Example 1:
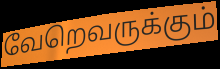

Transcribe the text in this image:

வேறெவருக்கும்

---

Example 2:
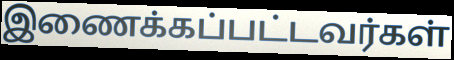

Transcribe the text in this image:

இணைக்கப்பட்டவர்கள்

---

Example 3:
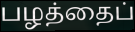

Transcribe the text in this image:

பழத்தைப்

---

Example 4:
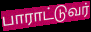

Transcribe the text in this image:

பாராட்டுவர்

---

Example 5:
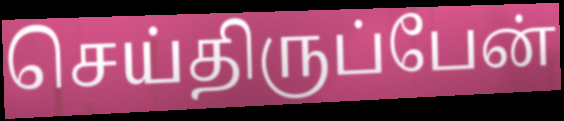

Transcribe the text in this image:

செய்திருப்பேன்